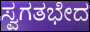
ಸ್ವಗತಭೇದ